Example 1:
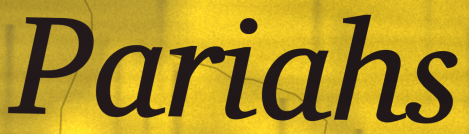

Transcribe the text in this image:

Pariahs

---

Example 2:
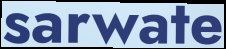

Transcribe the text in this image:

sarwate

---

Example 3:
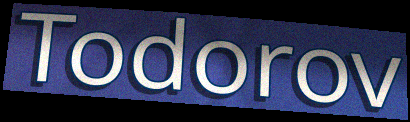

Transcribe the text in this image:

Todorov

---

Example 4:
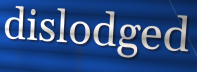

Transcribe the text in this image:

dislodged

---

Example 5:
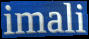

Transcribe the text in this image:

imali